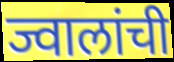
ज्वालांची